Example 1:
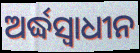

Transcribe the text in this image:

ଅର୍ଦ୍ଧସ୍ୱାଧୀନ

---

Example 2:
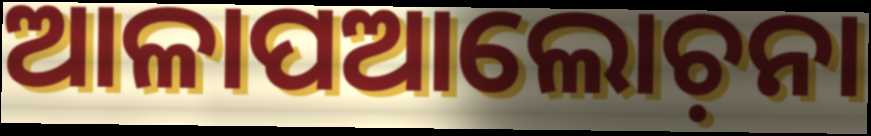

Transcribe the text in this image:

ଆଳାପଆଲୋଚ଼ନା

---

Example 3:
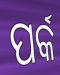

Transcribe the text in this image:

ପର୍କ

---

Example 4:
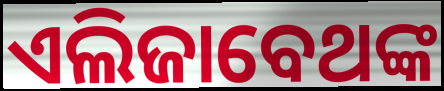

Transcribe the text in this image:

ଏଲିଜାବେଥଙ୍କ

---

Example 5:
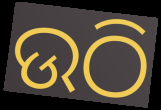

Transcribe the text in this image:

ଉଠି